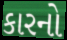
કારનો